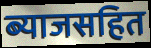
ब्याजसहित